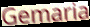
Gemaria